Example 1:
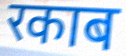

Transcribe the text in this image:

रकाब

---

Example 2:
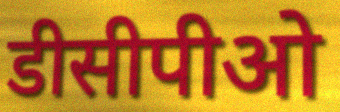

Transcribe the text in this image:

डीसीपीओ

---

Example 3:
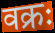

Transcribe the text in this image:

वक्रः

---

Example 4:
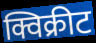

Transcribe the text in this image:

क्विक्रीट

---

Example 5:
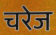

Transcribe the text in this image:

चरेज